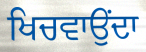
ਖਿਚਵਾਉਂਦਾ